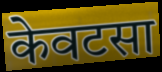
केवटसा